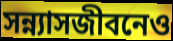
সন্ন্যাসজীবনেও